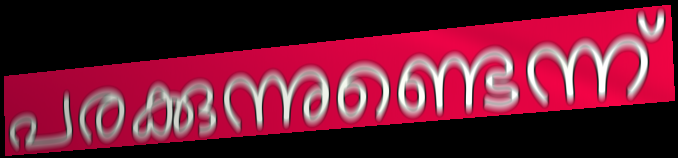
പരക്കുന്നുണ്ടെന്ന്